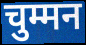
चुम्मन